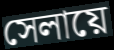
সেলায়ে